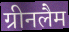
ग्रीनलैम